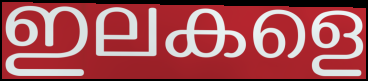
ഇലകളെ